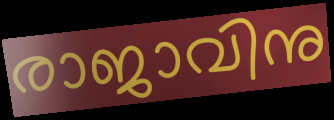
രാജാവിനു